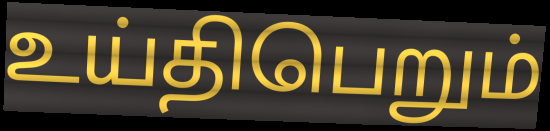
உய்திபெறும்